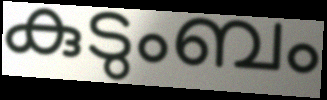
കുടുംബം